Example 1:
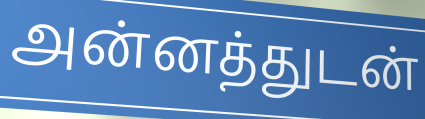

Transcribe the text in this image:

அன்னத்துடன்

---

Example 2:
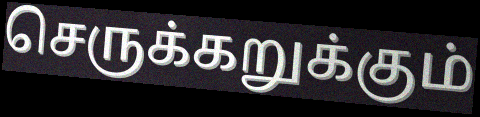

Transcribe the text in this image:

செருக்கறுக்கும்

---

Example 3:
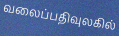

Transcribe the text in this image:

வலைப்பதிவுலகில்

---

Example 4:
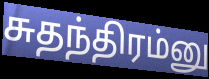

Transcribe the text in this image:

சுதந்திரம்னு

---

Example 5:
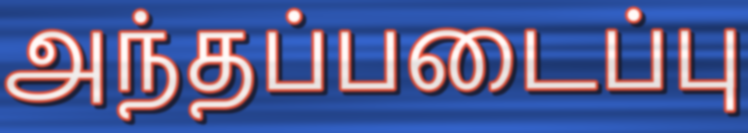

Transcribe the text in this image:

அந்தப்படைப்பு